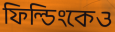
ফিল্ডিংকেও